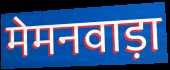
मेमनवाड़ा